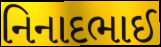
નિનાદભાઈ